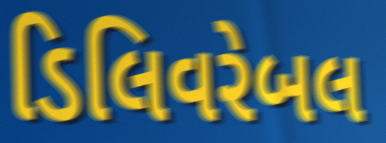
ડિલિવરેબલ